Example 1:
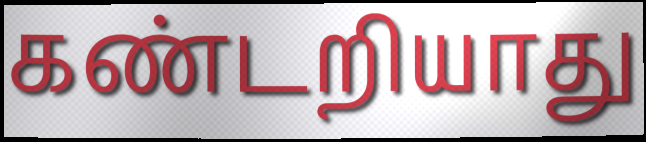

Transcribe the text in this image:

கண்டறியாது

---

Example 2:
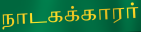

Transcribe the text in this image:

நாடகக்காரர்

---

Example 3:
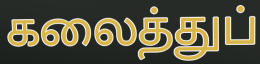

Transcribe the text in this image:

கலைத்துப்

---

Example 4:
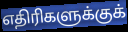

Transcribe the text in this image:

எதிரிகளுக்குக்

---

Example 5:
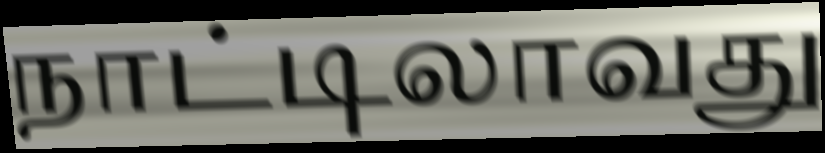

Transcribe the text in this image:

நாட்டிலாவது